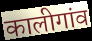
कालीगांव